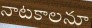
నాటకాలనూ